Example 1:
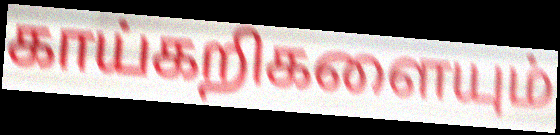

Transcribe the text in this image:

காய்கறிகளையும்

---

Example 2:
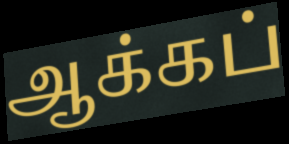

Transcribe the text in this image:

ஆக்கப்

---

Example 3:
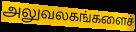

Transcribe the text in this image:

அலுவலகங்களைச்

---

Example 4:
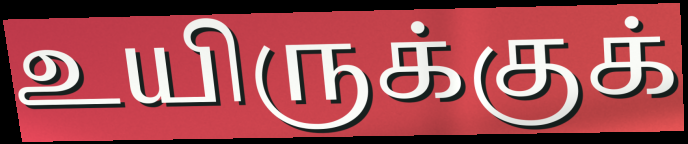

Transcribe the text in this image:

உயிருக்குக்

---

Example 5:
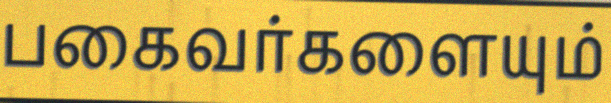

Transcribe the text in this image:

பகைவர்களையும்